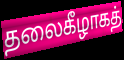
தலைகீழாகத்